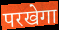
परखेगा